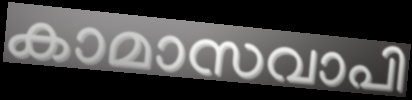
കാമാസവാപി